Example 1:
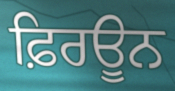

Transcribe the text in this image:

ਫ਼ਿਰਊਨ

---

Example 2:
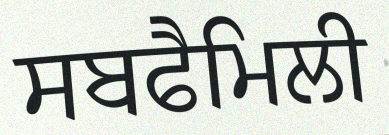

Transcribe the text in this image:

ਸਬਫੈਮਿਲੀ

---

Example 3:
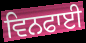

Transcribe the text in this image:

ਵਿਨਫਾਈ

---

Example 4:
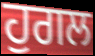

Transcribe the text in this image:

ਹੁਗਲ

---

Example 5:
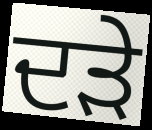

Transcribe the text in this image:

ਦੜੇ